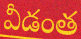
వీడంత